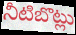
నీటిబొట్లు